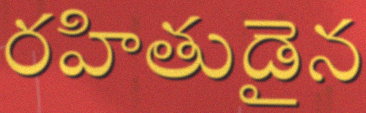
రహితుడైన